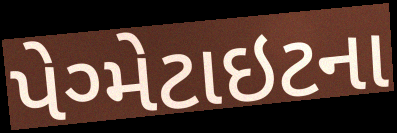
પેગ્મેટાઇટના